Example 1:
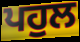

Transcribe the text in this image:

ਪਹੁਲ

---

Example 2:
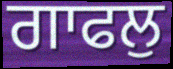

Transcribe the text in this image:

ਗਾਫਲੁ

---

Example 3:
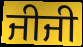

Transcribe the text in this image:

ਜੀਜੀ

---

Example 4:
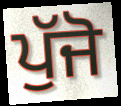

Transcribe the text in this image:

ਪੁੱਜੋ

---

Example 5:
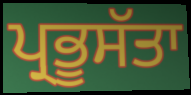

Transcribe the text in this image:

ਪ੍ਰਭੂਸੱਤਾ